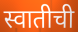
स्वातीची